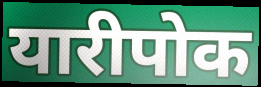
यारीपोक